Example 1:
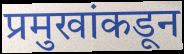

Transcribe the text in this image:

प्रमुखांकडून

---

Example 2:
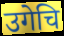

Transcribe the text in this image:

उगेचि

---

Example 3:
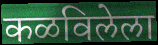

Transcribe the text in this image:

कळविलेला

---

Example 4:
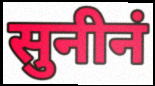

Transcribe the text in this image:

सुनीनं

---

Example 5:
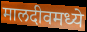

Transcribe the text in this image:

मालदीवमध्ये